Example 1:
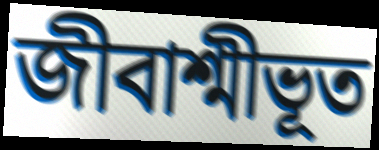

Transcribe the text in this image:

জীবাশ্মীভূত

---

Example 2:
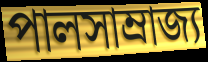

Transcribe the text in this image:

পালসাম্রাজ্য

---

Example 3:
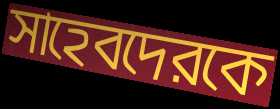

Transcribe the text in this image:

সাহেবদেরকে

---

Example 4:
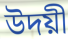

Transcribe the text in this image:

উদয়ী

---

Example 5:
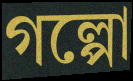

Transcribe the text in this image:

গল্পো